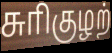
சுரிகுழற்